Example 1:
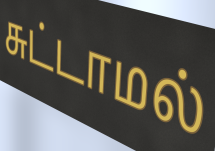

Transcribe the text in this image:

சுட்டாமல்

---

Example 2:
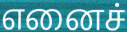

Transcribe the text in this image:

எனைச்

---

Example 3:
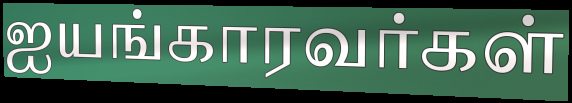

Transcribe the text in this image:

ஐயங்காரவர்கள்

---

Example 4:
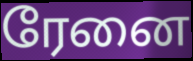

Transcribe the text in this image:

ரேனை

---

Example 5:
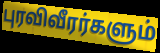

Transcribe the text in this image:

புரவிவீரர்களும்